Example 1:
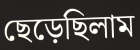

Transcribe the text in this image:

ছেড়েছিলাম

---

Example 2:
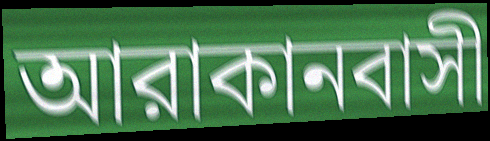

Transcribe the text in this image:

আরাকানবাসী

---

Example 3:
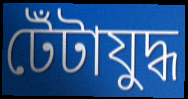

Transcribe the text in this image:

টেঁটাযুদ্ধ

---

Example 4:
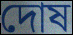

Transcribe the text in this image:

দোষ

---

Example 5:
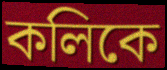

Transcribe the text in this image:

কলিকে